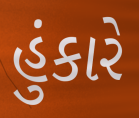
હુંકારે